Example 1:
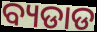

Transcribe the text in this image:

ବ୍ୟଡାଡ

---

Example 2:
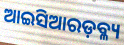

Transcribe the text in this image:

ଆଇସିଆରଡ଼ବ୍ଳ୍ୟ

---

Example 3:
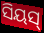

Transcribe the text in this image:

ସିୟସ୍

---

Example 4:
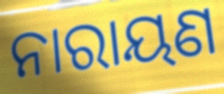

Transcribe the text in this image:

ନାରାୟଣ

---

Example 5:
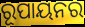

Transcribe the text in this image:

ରୂପାୟନର